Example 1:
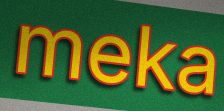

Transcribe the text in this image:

meka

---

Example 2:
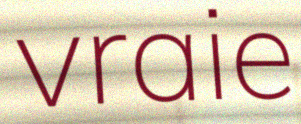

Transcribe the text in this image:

vraie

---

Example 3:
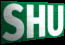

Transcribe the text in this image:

SHU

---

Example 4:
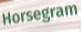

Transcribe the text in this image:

Horsegram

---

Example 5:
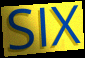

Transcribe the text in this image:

SIX